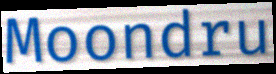
Moondru